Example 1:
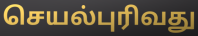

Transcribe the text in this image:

செயல்புரிவது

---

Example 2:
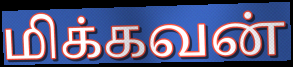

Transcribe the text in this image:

மிக்கவன்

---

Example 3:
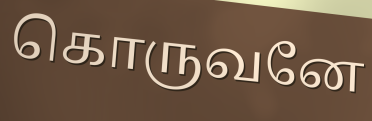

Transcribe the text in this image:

கொருவனே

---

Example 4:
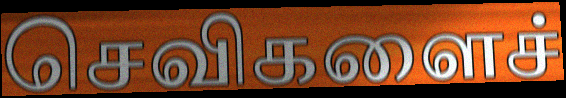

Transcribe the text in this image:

செவிகளைச்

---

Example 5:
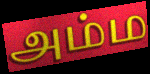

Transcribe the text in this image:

அம்ம